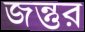
জন্তুর